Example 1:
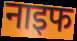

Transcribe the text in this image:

नाइफ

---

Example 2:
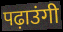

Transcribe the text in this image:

पढ़ाउंगी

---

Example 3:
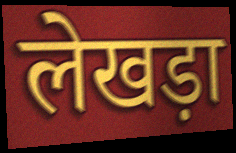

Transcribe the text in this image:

लेखड़ा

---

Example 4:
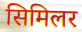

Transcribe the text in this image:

सिमिलर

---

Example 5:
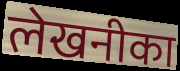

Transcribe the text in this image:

लेखनीका